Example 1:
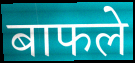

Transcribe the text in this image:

बाफले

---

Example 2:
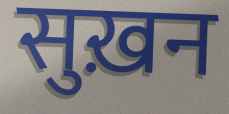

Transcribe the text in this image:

सुख़न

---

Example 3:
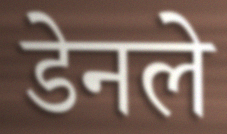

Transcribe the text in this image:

डेनले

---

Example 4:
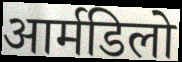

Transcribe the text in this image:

आर्मडिलो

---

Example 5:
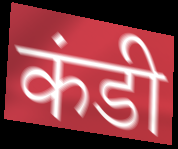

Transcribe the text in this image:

कंडी